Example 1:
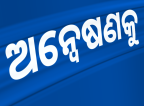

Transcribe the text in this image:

ଅନ୍ବେଷଣକୁ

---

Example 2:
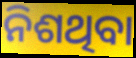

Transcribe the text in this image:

ନିଶଥିବା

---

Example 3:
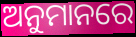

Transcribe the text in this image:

ଅନୁମାନରେ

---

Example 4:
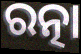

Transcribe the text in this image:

ରତ୍ନା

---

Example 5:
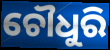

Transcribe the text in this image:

ଚୌଧୁରି